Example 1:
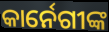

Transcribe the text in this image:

କାର୍ନେଗୀଙ୍କ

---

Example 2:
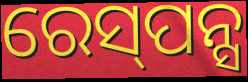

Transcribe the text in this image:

ରେସ୍‌ପନ୍ସ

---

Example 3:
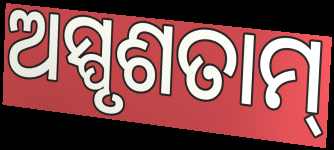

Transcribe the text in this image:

ଅସ୍ପୃଶତାମ୍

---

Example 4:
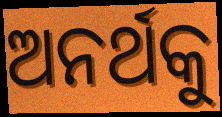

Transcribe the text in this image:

ଅନର୍ଥକୁ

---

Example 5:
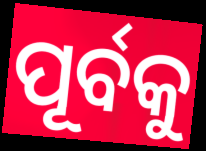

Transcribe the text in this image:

ପୂର୍ବକୁ